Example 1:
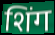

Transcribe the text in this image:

शिंग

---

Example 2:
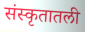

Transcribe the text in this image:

संस्कृतातली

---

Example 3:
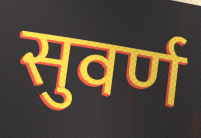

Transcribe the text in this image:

सुवर्ण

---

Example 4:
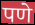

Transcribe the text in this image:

पणे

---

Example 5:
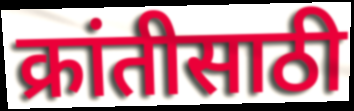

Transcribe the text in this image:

क्रांतीसाठी